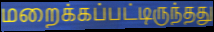
மறைக்கப்பட்டிருந்தது